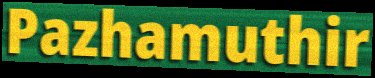
Pazhamuthir